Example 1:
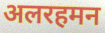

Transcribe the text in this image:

अलरहमन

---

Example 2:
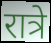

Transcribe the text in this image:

रात्रे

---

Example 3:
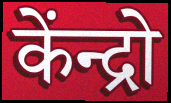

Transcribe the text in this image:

केंन्द्रो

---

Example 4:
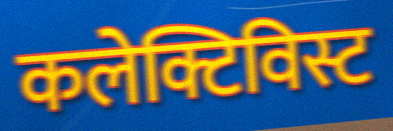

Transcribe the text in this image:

कलेक्टिविस्ट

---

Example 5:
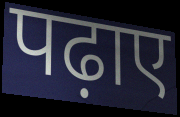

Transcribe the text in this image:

पढ़ाए